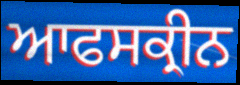
ਆਫਸਕ੍ਰੀਨ